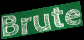
Brute